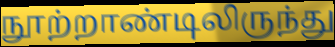
நூற்றாண்டிலிருந்து